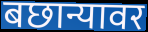
बछान्यावर